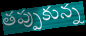
తప్పుకున్న